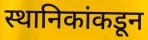
स्थानिकांकडून